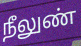
நீலுண்